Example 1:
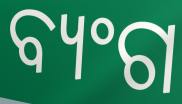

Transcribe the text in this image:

ବ୍ୟଂଗ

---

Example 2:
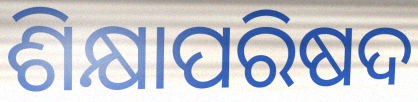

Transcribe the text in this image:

ଶିକ୍ଷାପରିଷଦ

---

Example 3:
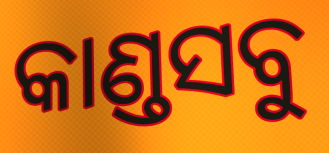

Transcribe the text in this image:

କାଣ୍ଡସବୁ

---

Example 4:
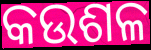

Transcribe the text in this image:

କଉଶଳ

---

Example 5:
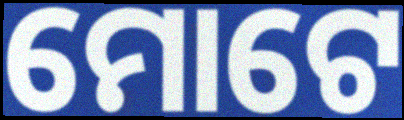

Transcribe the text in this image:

ମୋଟେ